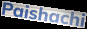
Paishachi